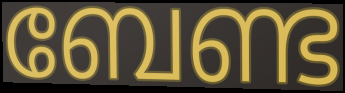
ബേണ്ട